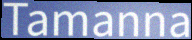
Tamanna